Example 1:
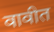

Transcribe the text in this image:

वावीत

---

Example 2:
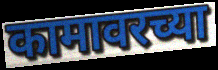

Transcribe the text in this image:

कामावरच्या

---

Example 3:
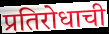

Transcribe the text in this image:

प्रतिरोधाची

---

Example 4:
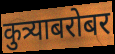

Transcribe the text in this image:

कुत्र्याबरोबर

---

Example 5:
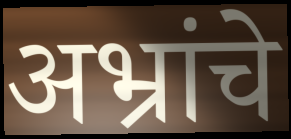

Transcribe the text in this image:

अभ्रांचे